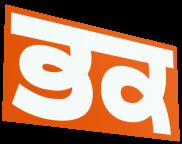
ਭਕ